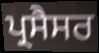
ਪ੍ਰਸੈਸਰ